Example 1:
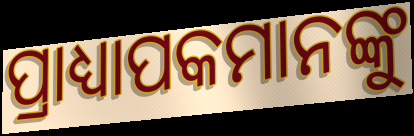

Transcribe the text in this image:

ପ୍ରାଧ୍ୟାପକମାନଙ୍କୁ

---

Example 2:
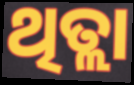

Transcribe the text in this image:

ଥିତ୍ଲା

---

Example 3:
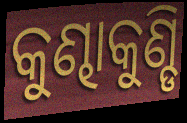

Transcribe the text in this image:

କୁଣ୍ଢାକୁଣ୍ଡି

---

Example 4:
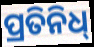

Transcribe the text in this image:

ପ୍ରତିନିଧ୍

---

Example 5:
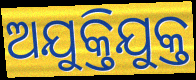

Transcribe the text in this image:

ଅଯୁକ୍ତିଯୁକ୍ତ